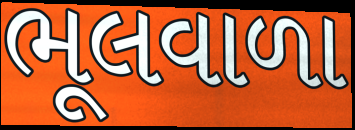
ભૂલવાળા